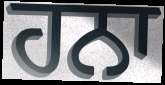
ਹਨਾ